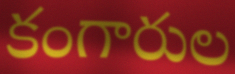
కంగారుల